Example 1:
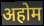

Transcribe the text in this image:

अहोम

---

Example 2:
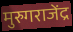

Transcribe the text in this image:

मुरुगराजेंद्र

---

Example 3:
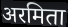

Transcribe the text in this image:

अरमिता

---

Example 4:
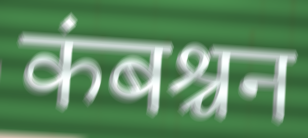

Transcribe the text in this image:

कंबश्चन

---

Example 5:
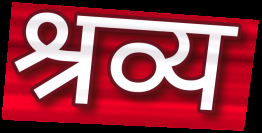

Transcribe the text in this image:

श्रव्य